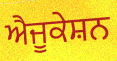
ਐਜੂਕੇਸ਼ਨ